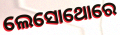
ଲେସୋଥୋରେ